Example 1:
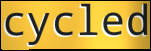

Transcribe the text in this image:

cycled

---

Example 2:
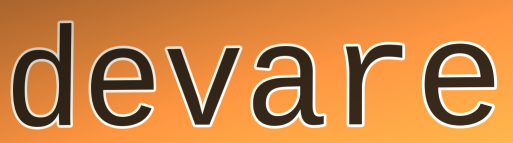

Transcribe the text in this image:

devare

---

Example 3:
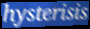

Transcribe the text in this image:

hysterisis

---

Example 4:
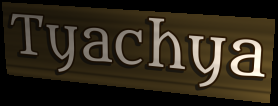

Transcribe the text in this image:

Tyachya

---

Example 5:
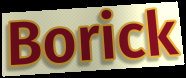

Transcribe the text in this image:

Borick